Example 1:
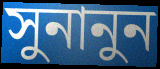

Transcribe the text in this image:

সুনানুন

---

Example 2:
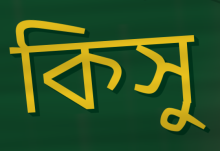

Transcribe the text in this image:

কিসু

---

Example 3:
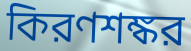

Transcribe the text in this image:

কিরণশঙ্কর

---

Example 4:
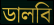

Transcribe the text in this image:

ডালবি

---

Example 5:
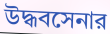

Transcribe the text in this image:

উদ্ধবসেনার